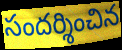
సందర్శించిన